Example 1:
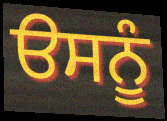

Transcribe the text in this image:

ੳਸਨੂੰ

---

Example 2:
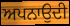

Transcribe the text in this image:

ਅਪਨਾਉਦੀ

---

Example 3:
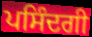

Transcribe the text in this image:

ਪਸਿੰਦਗੀ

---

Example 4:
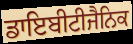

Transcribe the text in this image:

ਡਾਇਬੀਟੀਜੈਨਿਕ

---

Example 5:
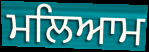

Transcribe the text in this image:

ਮਲਿਆਮ